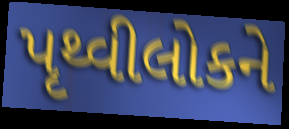
પૃથ્વીલોકને